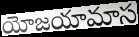
యోజయామాస